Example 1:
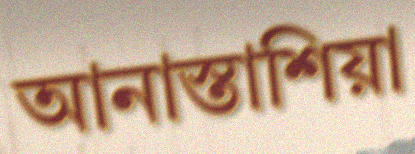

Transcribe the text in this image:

আনাস্তাশিয়া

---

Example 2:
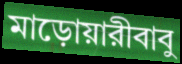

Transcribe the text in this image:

মাড়োয়ারীবাবু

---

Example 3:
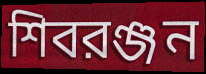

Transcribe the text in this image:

শিবরঞ্জন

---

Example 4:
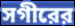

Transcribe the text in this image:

সগীরের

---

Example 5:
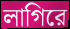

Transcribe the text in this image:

লাগিরে